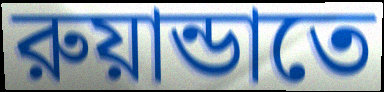
রুয়ান্ডাতে